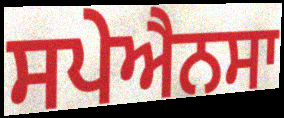
ਸਪੇਐਨਸਾ